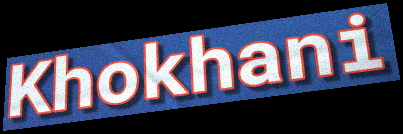
Khokhani